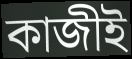
কাজীই